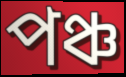
পঞ্চ